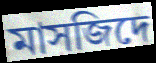
মাসজিদে